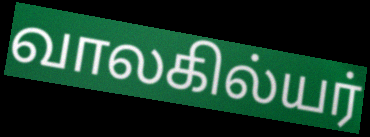
வாலகில்யர்